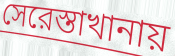
সেরেস্তাখানায়